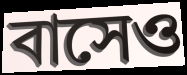
বাসেও